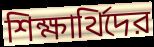
শিক্ষার্থিদের